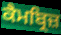
ਕੈਮਬ੍ਰਿਜ਼